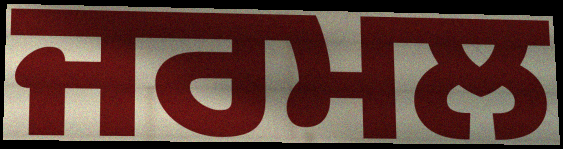
ਜਰਮਲ